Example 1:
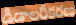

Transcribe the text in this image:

డీడాలరీకరణ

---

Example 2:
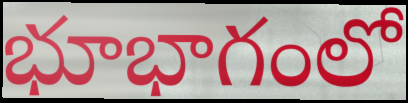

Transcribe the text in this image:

భూభాగంలో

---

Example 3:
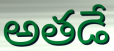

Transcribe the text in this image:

అతడే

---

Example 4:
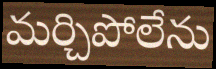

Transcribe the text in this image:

మర్చిపోలేను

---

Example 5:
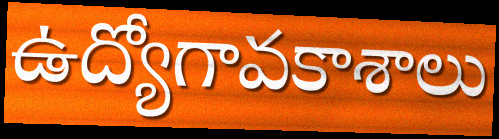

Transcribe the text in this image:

ఉద్యోగావకాశాలు